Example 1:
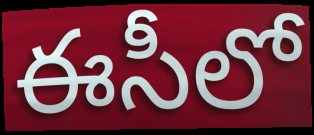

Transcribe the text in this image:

ఈసీలో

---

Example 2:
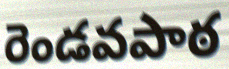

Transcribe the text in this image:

రెండవపాఠ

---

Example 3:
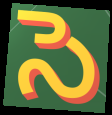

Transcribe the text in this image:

సె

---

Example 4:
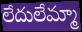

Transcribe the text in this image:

లేదులేమ్మా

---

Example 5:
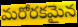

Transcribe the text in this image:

మరోరకమైన